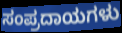
ಸಂಪ್ರದಾಯಗಳು